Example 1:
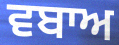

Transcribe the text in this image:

ਵਬਾਅ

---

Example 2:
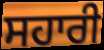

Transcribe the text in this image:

ਸਹਾਰੀ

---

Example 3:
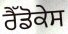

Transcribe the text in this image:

ਰੈੱਡੋਕੇਸ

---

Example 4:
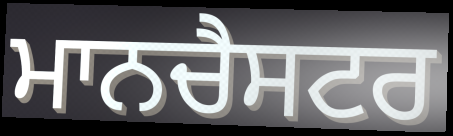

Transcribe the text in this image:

ਮਾਨਚੈਸਟਰ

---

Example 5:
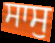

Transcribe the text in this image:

ਸਾਸੁ